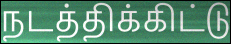
நடத்திக்கிட்டு